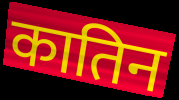
कातिन